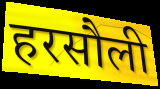
हरसौली